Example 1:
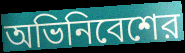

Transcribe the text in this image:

অভিনিবেশের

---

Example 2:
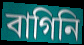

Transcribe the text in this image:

বাগিনি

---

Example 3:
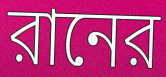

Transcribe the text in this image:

রানের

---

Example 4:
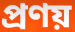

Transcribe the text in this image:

প্রণয়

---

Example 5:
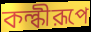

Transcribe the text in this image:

কল্কীরূপে